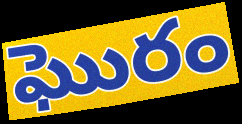
ఘొరం